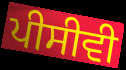
ਪੀਸੀਵੀ